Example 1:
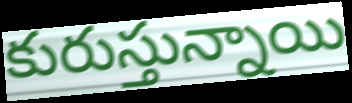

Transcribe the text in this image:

కురుస్తున్నాయి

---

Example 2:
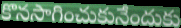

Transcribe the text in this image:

కొనసాగించుకునేందుకు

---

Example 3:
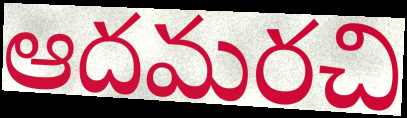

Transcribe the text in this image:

ఆదమరచి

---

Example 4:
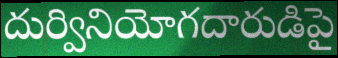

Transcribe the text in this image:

దుర్వినియోగదారుడిపై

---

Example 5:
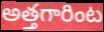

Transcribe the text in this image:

అత్తగారింట